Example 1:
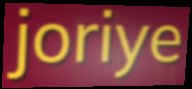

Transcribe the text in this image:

joriye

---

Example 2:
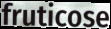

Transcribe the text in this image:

fruticose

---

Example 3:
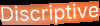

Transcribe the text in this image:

Discriptive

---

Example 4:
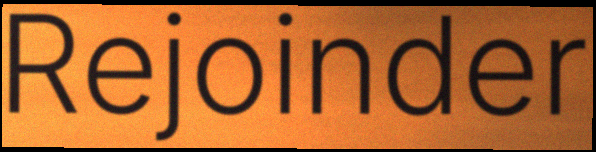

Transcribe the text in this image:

Rejoinder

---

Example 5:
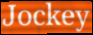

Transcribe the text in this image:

Jockey